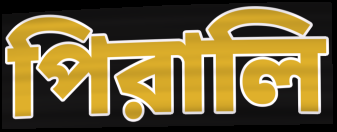
পিরালি